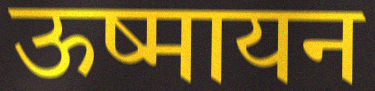
ऊष्मायन